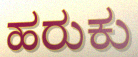
ಹರುಕು